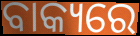
ବାକ୍ୟରେ